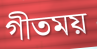
গীতময়